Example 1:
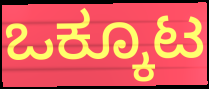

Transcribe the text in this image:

ಒಕ್ಕೂಟ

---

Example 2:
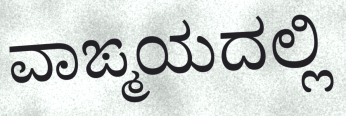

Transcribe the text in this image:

ವಾಙ್ಮಯದಲ್ಲಿ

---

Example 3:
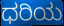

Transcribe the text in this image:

ಧರಿಯ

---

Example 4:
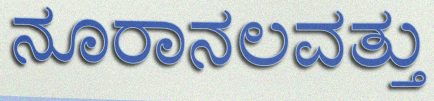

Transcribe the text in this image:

ನೂರಾನಲವತ್ತು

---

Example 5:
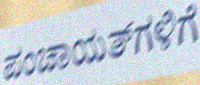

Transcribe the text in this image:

ಪಂಚಾಯತ್‌ಗಳಿಗೆ